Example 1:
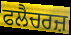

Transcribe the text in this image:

ਫਲੈਚਰਜ਼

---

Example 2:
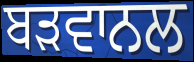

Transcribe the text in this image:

ਬੜਵਾਨਲ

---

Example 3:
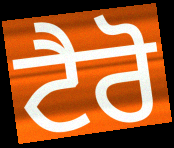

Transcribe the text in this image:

ਟੈਰੋ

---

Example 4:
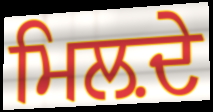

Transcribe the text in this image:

ਮਿਲ਼ਦੇ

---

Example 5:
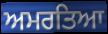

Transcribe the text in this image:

ਅਮਰਤਿਆ